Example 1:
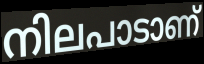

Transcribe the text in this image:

നിലപാടാണ്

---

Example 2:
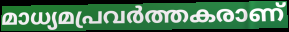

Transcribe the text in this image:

മാധ്യമപ്രവർത്തകരാണ്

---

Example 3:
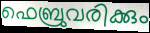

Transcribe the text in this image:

ഫെബ്രുവരിക്കും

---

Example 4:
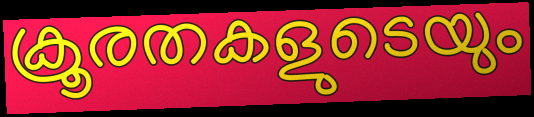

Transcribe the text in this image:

ക്രൂരതകളുടെയും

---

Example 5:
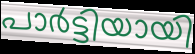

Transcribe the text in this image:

പാർട്ടിയായി